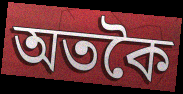
অতকৈ